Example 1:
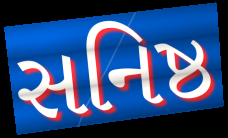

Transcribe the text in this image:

સનિષ્ઠ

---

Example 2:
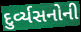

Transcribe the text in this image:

દુર્વ્યસનોની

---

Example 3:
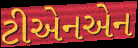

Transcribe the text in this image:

ટીએનએન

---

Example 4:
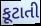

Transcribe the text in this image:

કૂટાતી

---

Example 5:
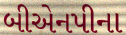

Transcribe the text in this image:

બીએનપીના